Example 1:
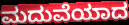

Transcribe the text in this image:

ಮದುವೆಯಾದ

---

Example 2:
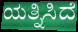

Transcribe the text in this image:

ಯತ್ನಿಸಿದೆ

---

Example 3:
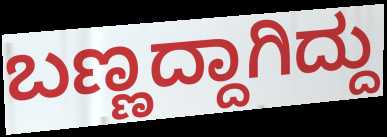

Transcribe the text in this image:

ಬಣ್ಣದ್ದಾಗಿದ್ದು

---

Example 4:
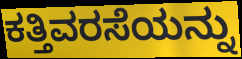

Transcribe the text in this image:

ಕತ್ತಿವರಸೆಯನ್ನು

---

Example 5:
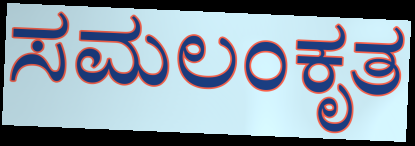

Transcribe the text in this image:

ಸಮಲಂಕೃತ